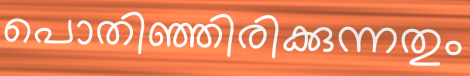
പൊതിഞ്ഞിരിക്കുന്നതും